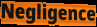
Negligence